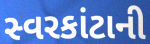
સ્વરકાંટાની